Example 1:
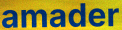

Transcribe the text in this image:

amader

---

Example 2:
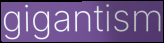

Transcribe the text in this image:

gigantism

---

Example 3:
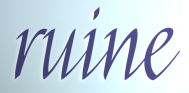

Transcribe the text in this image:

ruine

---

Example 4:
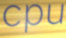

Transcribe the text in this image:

cpu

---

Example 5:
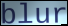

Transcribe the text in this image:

blur